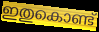
ഇതുകൊണ്ട്